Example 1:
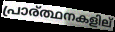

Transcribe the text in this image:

പ്രാര്ത്ഥനകളില്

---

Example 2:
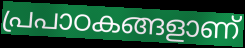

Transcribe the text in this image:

പ്രപാഠകങ്ങളാണ്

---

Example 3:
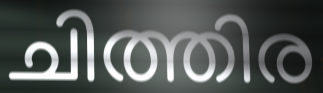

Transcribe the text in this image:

ചിത്തിര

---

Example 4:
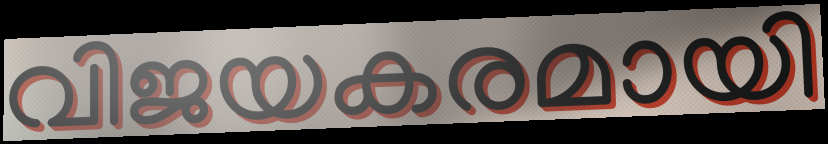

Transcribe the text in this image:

വിജയകരമായി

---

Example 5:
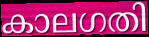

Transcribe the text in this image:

കാലഗതി